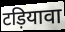
टड़ियावा